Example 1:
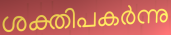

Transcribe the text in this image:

ശക്തിപകർന്നു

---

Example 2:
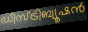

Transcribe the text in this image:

ഡിസ്ട്രിബ്യൂഷൻ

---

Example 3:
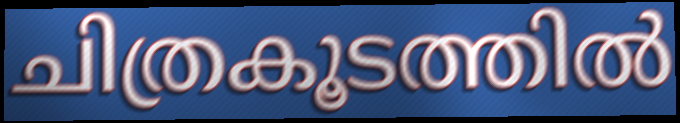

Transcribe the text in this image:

ചിത്രകൂടത്തിൽ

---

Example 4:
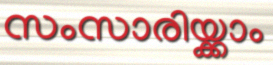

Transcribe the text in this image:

സംസാരിയ്ക്കാം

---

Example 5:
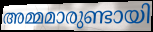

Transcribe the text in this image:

അമ്മമാരുണ്ടായി